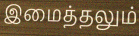
இமைத்தலும்